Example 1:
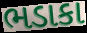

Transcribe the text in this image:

ભડાકા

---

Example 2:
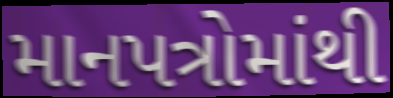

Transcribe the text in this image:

માનપત્રોમાંથી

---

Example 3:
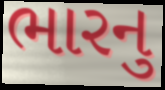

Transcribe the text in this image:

ભારનુ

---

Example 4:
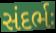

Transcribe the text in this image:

સંદર્ભઃ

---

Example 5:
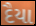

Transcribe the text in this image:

દૈયા